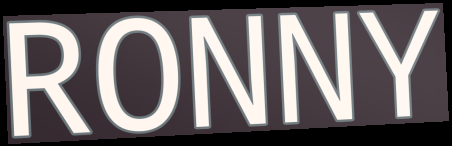
RONNY